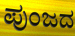
ಪುಂಜದ